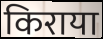
किराया